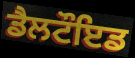
ਡੈਲਟੌਇਡ